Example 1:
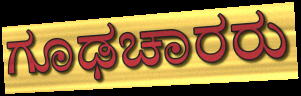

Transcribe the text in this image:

ಗೂಢಚಾರರು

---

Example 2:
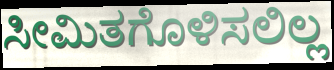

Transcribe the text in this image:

ಸೀಮಿತಗೊಳಿಸಲಿಲ್ಲ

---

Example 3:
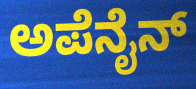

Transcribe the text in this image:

ಅಪೆನೈನ್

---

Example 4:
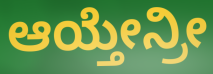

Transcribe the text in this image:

ಆಯ್ತೇನ್ರೀ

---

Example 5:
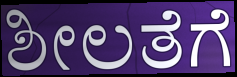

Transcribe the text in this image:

ಶೀಲತೆಗೆ